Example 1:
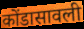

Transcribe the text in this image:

कोंडासावली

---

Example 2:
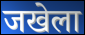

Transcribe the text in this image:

जखेला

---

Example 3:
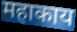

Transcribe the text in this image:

महाकाय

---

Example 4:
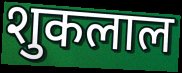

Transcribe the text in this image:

शुकलाल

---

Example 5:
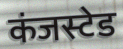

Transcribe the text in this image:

कंजस्टेड